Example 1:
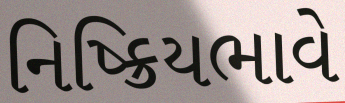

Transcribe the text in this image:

નિષ્ક્રિયભાવે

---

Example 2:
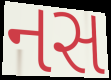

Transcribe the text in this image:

નસ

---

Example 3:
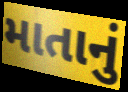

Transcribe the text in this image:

માતાનું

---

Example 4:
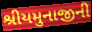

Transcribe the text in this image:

શ્રીયમુનાજીની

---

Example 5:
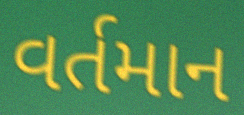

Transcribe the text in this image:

વર્તમાન